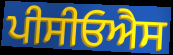
ਪੀਸੀਓਐਸ